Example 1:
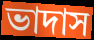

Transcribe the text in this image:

ভাদাস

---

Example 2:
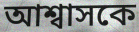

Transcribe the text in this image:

আশ্বাসকে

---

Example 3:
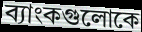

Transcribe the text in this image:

ব্যাংকগুলোকে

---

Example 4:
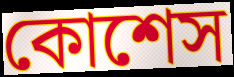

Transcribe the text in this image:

কোশেস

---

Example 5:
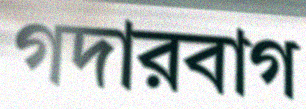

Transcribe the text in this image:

গদারবাগ